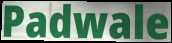
Padwale